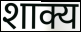
शाक्य